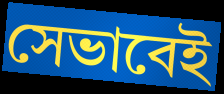
সেভাবেই